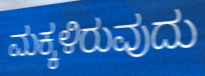
ಮಕ್ಕಳಿರುವುದು